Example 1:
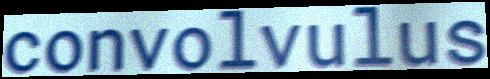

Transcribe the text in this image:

convolvulus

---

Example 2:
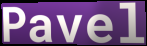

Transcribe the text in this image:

Pavel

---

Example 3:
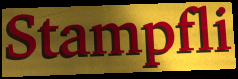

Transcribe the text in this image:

Stampfli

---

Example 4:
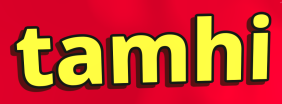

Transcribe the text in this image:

tamhi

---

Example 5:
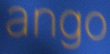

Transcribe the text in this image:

ango